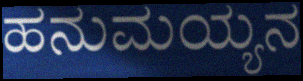
ಹನುಮಯ್ಯನ